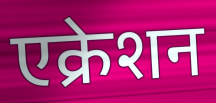
एक्रेशन